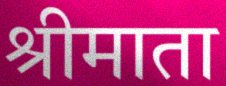
श्रीमाता